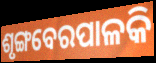
ଶୃଙ୍ଗବେରପାଳକି